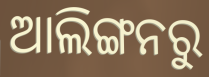
ଆଲିଙ୍ଗନରୁ